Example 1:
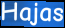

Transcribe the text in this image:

Hajas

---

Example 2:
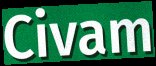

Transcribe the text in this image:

Civam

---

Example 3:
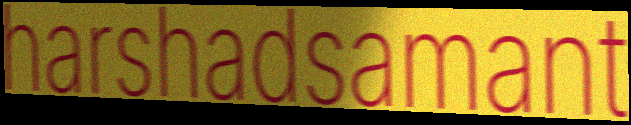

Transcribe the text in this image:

harshadsamant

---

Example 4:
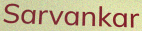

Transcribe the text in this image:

Sarvankar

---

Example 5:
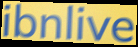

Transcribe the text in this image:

ibnlive